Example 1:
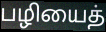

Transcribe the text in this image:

பழியைத்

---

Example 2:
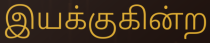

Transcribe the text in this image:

இயக்குகின்ற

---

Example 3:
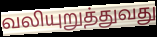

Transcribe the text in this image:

வலியுறுத்துவது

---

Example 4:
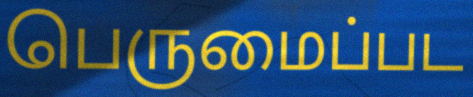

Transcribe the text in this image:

பெருமைப்பட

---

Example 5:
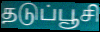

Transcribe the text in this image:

தடுப்பூசி